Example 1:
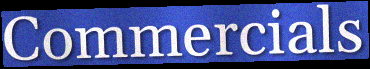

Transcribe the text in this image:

Commercials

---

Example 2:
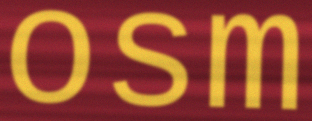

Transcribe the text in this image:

osm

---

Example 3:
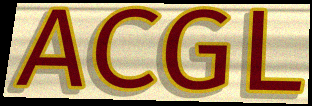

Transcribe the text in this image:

ACGL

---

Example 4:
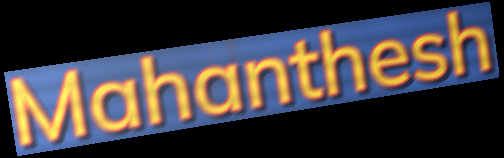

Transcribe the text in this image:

Mahanthesh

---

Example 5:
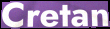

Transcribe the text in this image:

Cretan